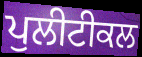
ਪੁਲੀਟੀਕਲ